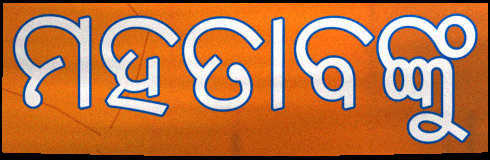
ମହତାବଙ୍କୁ